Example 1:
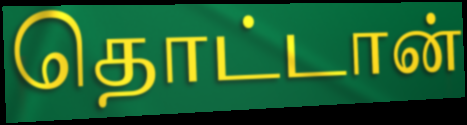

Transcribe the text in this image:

தொட்டான்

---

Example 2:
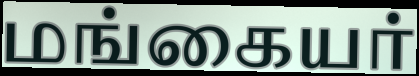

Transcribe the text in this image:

மங்கையர்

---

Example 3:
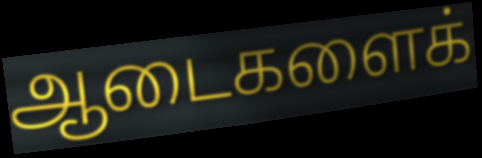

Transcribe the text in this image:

ஆடைகளைக்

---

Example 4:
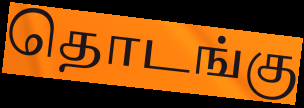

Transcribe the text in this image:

தொடங்கு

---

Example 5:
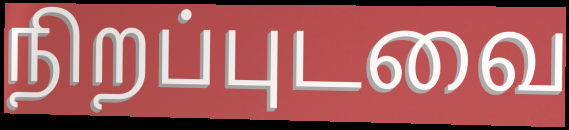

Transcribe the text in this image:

நிறப்புடவை